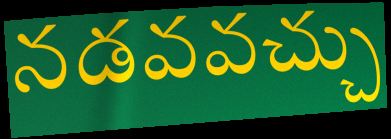
నడవవచ్చు